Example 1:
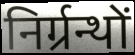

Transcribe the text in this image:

निर्ग्रन्थों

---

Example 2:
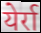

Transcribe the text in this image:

येर्रा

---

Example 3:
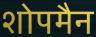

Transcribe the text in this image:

शोपमैन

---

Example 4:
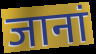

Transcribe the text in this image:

जानां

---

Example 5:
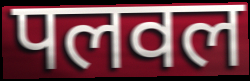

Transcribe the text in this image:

पलवल